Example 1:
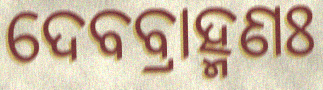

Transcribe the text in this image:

ଦେବବ୍ରାହ୍ମଣଃ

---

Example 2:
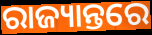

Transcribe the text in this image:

ରାଜ୍ୟାନ୍ତରେ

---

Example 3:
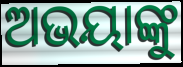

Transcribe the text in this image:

ଅଭୟାଙ୍କୁ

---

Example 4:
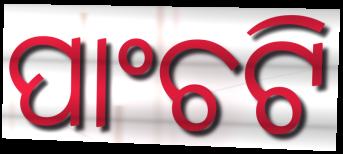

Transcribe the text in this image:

ପାଂଚଟି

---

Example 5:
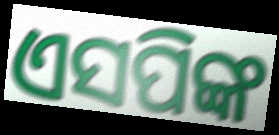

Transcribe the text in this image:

ଏସପିଙ୍କ